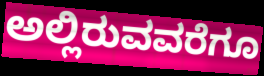
ಅಲ್ಲಿರುವವರೆಗೂ